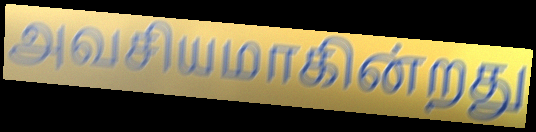
அவசியமாகின்றது